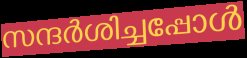
സന്ദർശിച്ചപ്പോൾ